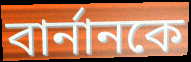
বাৰ্নানকে